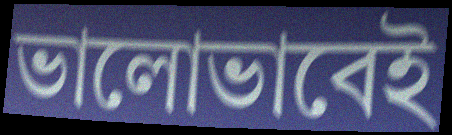
ভালোভাবেই